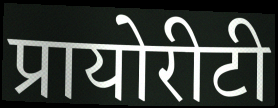
प्रायोरीटी